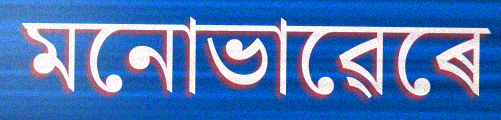
মনোভাৱেৰে